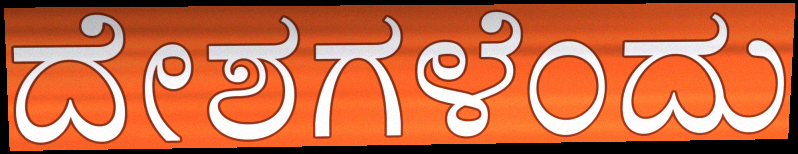
ದೇಶಗಳೆಂದು